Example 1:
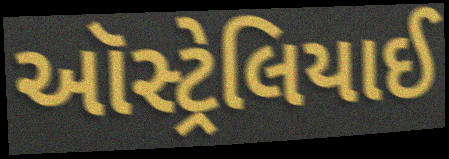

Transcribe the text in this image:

ઑસ્ટ્રેલિયાઈ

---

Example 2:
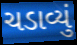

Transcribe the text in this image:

ચડાવ્યું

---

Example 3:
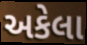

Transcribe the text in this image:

અકેલા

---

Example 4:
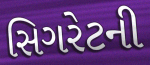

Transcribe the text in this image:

સિગરેટની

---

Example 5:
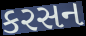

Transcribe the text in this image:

કરસન